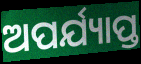
ଅପର୍ଯ୍ୟାପ୍ତ